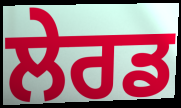
ਲੇਰਡ